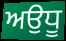
ਅਉਧੂ